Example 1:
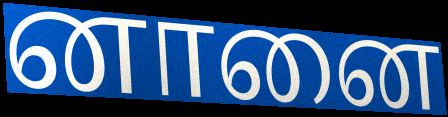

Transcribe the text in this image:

னானை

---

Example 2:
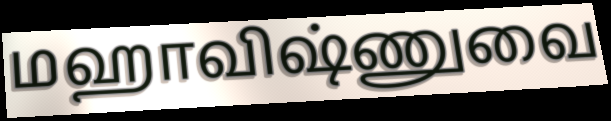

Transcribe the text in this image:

மஹாவிஷ்ணுவை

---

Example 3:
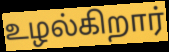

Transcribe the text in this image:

உழல்கிறார்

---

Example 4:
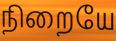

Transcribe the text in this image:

நிறையே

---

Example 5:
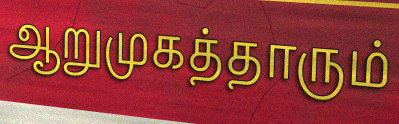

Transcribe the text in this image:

ஆறுமுகத்தாரும்